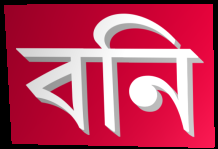
বনি